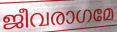
ജീവരാഗമേ